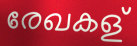
രേഖകള്